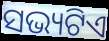
ସଭ୍ୟଟିଏ